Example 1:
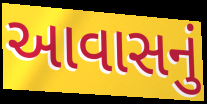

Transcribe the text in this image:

આવાસનું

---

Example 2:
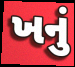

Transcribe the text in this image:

ખનું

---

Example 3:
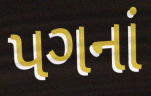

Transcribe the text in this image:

પગનાં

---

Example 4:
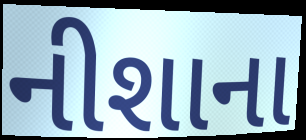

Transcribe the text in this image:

નીશાના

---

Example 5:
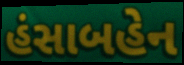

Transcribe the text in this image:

હંસાબહેન